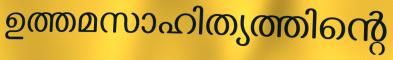
ഉത്തമസാഹിത്യത്തിന്റെ